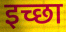
इच्छा